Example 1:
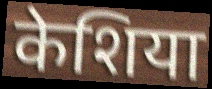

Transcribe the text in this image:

केशिया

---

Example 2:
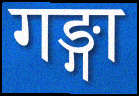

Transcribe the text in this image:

गङ्गा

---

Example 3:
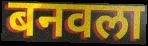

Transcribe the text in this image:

बनवला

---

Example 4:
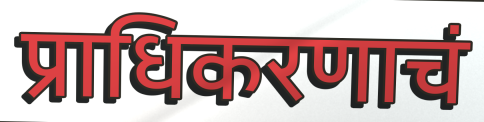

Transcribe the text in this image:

प्राधिकरणाचं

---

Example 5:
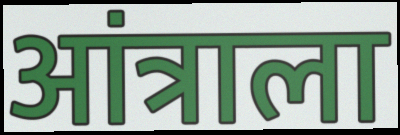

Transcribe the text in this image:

आंत्राला